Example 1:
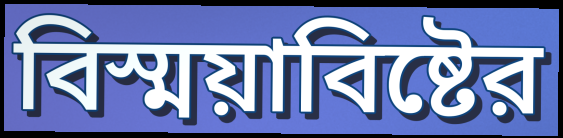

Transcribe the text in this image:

বিস্ময়াবিষ্টের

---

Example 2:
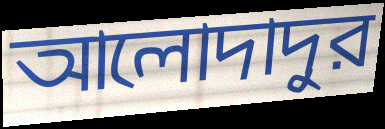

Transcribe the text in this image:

আলোদাদুর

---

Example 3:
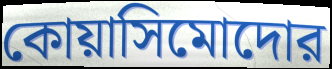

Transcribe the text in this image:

কোয়াসিমোদোর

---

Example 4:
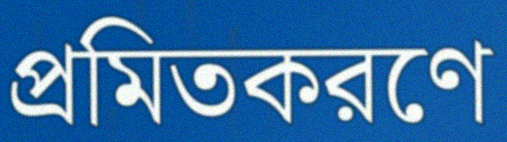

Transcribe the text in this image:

প্রমিতকরণে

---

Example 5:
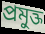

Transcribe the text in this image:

প্রমুক্ত